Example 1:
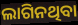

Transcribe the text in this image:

ଲାଗିନଥିବା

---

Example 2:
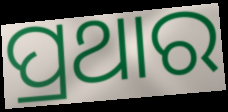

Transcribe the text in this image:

ପ୍ରଥାର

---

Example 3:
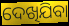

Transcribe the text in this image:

ଦେଖିଯିବା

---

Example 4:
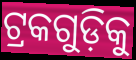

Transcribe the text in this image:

ଟ୍ରକଗୁଡ଼ିକୁ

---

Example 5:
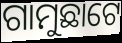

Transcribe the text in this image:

ଗାମୁଛାଟେ